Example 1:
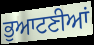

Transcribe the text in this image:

ਭੁਆਟਣੀਆਂ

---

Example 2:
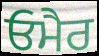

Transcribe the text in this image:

ਓਮੈਰ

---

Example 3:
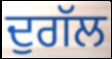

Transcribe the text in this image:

ਦੁਗੱਲ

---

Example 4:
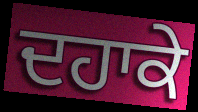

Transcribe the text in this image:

ਦਹਾਕੇ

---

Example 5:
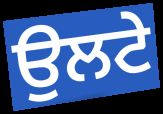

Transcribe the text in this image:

ਉਲਟੇ